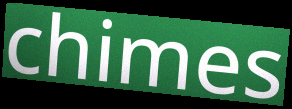
chimes